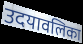
उदयावलिका